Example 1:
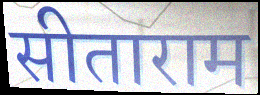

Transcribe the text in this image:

सीताराम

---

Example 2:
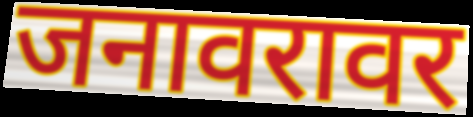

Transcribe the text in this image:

जनावरावर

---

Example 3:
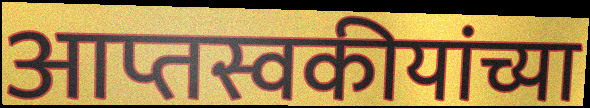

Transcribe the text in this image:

आप्तस्वकीयांच्या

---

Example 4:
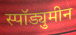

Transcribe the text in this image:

स्पॉड्युमीन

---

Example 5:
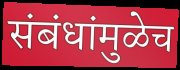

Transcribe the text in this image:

संबंधांमुळेच